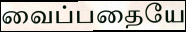
வைப்பதையே